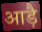
आड़ै